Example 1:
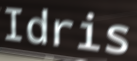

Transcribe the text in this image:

Idris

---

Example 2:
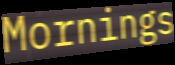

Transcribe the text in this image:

Mornings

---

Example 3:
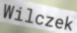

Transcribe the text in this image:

Wilczek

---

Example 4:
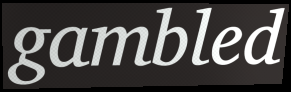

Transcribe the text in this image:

gambled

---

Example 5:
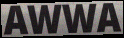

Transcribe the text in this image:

AWWA